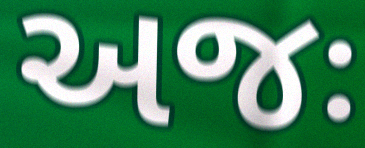
અજઃ